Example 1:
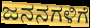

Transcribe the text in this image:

ಜನನಗಳಿಗೆ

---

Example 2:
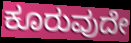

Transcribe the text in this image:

ಕೂರುವುದೇ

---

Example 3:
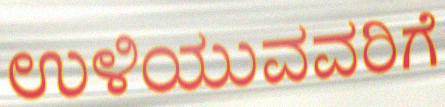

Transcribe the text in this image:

ಉಳಿಯುವವರಿಗೆ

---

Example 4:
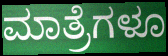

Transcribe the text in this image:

ಮಾತ್ರೆಗಳೂ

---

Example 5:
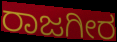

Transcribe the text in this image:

ರಾಜಗೀರ